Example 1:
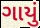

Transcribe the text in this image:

ગાયું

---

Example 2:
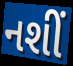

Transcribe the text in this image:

નશીં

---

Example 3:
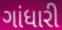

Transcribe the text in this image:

ગાંધારી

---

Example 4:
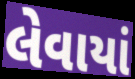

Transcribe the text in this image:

લેવાયાં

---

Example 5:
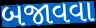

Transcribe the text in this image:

બજાવવા